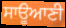
ਸਾਊਆਣੀ